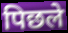
पिछले